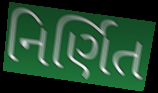
નિર્ણિત